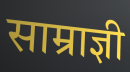
साम्राज्ञी